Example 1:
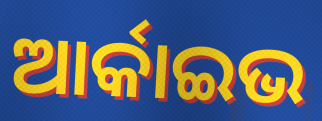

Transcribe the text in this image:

ଆର୍କାଇଭ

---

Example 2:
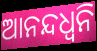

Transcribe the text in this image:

ଆନନ୍ଦଧ୍ଵନି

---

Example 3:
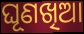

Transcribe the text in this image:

ଘୂଣଖିଆ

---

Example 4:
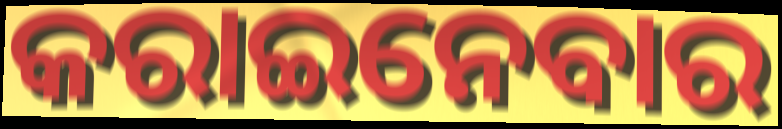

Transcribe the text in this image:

କରାଇନେବାର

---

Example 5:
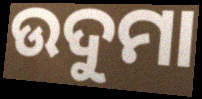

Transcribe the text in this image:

ଉଦୁମା